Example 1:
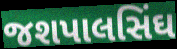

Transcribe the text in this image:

જશપાલસિંઘ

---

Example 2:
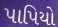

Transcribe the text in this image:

પાપિયો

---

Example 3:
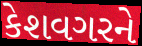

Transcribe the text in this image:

કેશવગરને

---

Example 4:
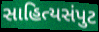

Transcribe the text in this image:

સાહિત્યસંપુટ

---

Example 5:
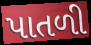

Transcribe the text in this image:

પાતળી